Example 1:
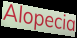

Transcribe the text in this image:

Alopecia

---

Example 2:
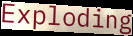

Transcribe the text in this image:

Exploding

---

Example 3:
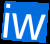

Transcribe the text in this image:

iw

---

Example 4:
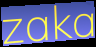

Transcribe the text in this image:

zaka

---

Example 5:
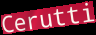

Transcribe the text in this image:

Cerutti